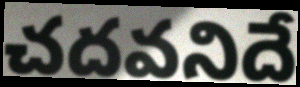
చదవనిదే